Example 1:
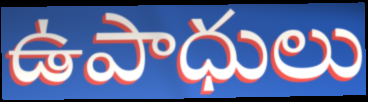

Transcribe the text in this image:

ఉపాధులు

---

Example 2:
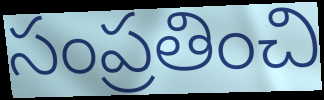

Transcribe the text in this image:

సంప్రతించి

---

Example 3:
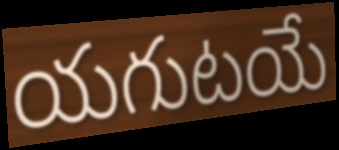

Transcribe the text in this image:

యగుటయే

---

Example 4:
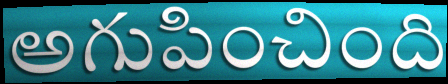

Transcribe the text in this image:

అగుపించింది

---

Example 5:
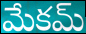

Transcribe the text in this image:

మేకమ్